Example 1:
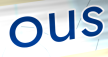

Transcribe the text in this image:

ous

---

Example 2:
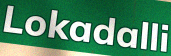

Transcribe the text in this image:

Lokadalli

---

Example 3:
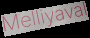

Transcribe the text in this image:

Melliyaval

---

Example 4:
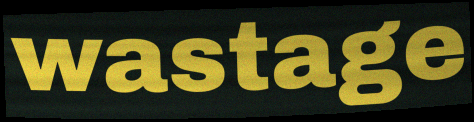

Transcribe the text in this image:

wastage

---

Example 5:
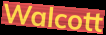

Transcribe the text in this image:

Walcott